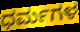
ಧರ್ಮಗಳ